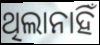
ଥିଲାନାହିଁ